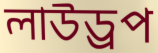
লাউড্রপ